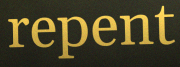
repent